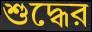
শুদ্ধের